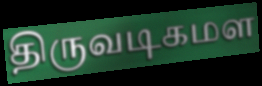
திருவடிகமள